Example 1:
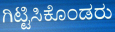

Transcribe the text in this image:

ಗಿಟ್ಟಿಸಿಕೊಂಡರು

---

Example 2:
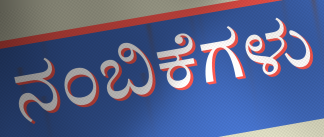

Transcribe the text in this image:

ನಂಬಿಕೆಗಳು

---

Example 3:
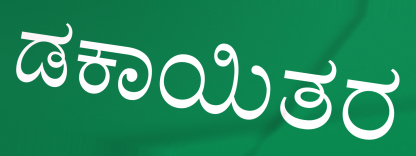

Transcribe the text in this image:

ಡಕಾಯಿತರ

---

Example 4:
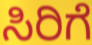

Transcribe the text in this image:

ಸಿರಿಗೆ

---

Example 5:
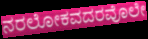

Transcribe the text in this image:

ನರಲೋಕವದರವೊಲೇ